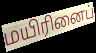
மயிரினைப்